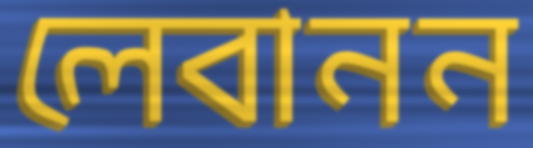
লেবানন